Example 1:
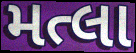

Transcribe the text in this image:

મત્લા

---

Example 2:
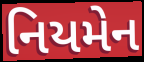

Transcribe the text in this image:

નિયમેન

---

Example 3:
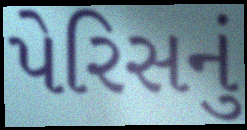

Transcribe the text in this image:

પેરિસનું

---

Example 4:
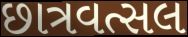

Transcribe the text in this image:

છાત્રવત્સલ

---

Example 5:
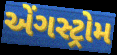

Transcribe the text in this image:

એંગસ્ટ્રોમ